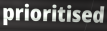
prioritised